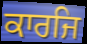
ਕਾਰਜਿ